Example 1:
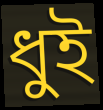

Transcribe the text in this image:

ধুই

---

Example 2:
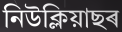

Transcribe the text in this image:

নিউক্লিয়াছৰ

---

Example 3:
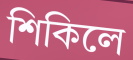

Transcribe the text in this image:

শিকিলে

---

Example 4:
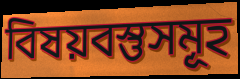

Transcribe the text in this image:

বিষয়বস্তুসমূহ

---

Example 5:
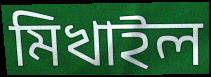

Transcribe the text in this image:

মিখাইল